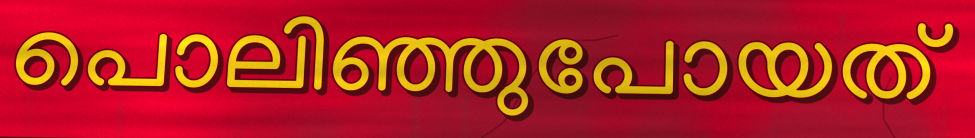
പൊലിഞ്ഞുപോയത്